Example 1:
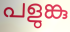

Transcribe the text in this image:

പളുങ്കു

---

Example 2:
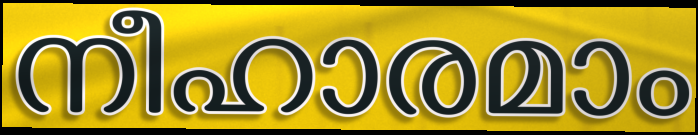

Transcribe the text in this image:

നീഹാരമാം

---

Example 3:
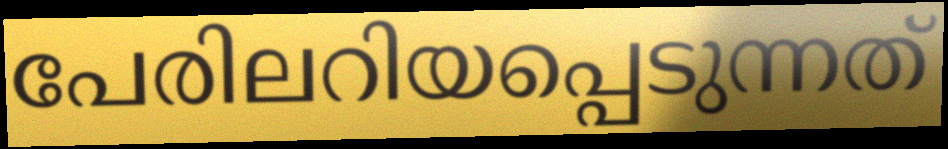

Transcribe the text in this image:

പേരിലറിയപ്പെടുന്നത്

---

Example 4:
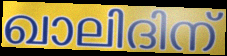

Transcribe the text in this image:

ഖാലിദിന്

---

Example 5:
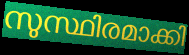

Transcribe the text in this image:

സുസ്ഥിരമാക്കി